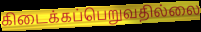
கிடைக்கப்பெறுவதில்லை